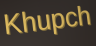
Khupch